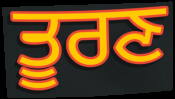
ਤੂਰਣ